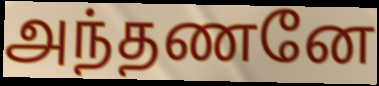
அந்தணனே